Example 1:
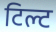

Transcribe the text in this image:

टिल्ट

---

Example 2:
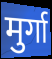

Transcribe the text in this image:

मुर्गा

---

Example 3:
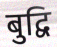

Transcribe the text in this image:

बुद्वि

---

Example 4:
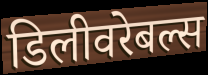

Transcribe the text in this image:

डिलीवरेबल्स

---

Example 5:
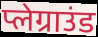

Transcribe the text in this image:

प्लेग्राउंड